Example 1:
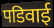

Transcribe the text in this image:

पडिवाई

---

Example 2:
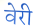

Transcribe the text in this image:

वेरी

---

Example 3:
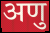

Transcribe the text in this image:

अणु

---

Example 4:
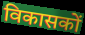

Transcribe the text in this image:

विकासकों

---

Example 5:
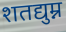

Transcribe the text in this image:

शतद्युम्न